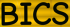
BICS